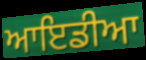
ਆਇਡੀਆ